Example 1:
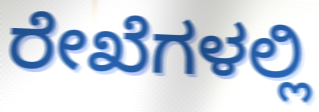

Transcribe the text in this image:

ರೇಖೆಗಳಲ್ಲಿ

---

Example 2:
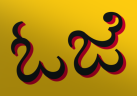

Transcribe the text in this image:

ಓಜೆ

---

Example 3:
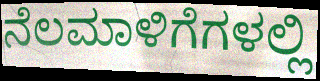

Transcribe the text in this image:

ನೆಲಮಾಳಿಗೆಗಳಲ್ಲಿ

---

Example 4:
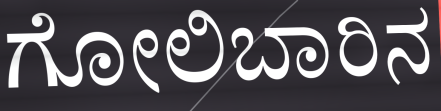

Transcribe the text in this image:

ಗೋಲಿಬಾರಿನ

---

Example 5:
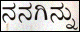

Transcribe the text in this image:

ನನಗಿನ್ನು